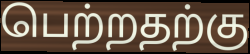
பெற்றதற்கு